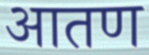
आतण